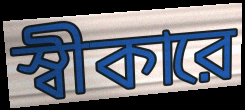
স্বীকারে